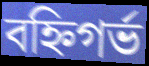
বহ্নিগর্ভ